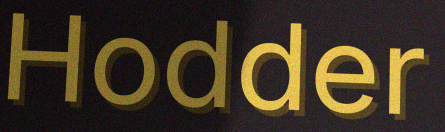
Hodder